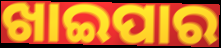
ଖାଇପାର